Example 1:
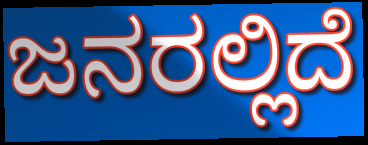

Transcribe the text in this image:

ಜನರಲ್ಲಿದೆ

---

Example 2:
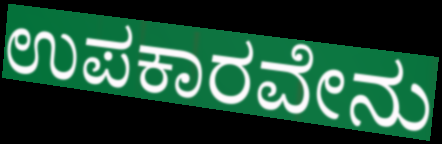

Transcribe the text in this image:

ಉಪಕಾರವೇನು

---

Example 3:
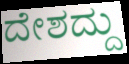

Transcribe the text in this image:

ದೇಶದ್ದು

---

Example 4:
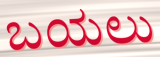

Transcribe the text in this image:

ಬಯಲು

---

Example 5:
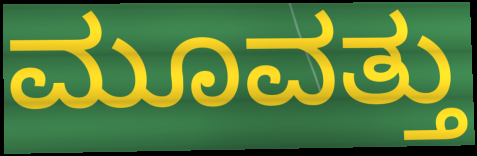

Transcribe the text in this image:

ಮೂವತ್ತು